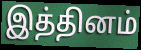
இத்தினம்